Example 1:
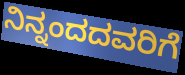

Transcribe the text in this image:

ನಿನ್ನಂದದವರಿಗೆ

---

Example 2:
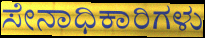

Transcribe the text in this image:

ಸೇನಾಧಿಕಾರಿಗಳು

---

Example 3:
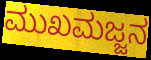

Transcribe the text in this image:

ಮುಖಮಜ್ಜನ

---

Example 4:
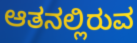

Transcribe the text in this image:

ಆತನಲ್ಲಿರುವ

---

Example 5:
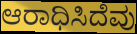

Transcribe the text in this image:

ಆರಾಧಿಸಿದೆವು